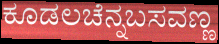
ಕೂಡಲಚೆನ್ನಬಸವಣ್ಣ